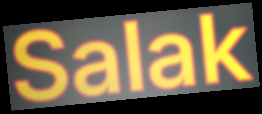
Salak